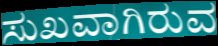
ಸುಖವಾಗಿರುವ